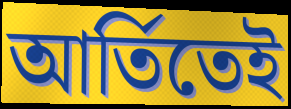
আর্তিতেই